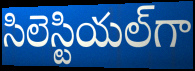
సిలెస్టియల్‌గా